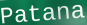
Patana